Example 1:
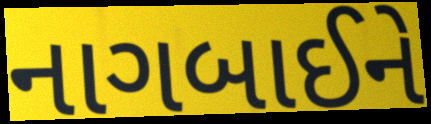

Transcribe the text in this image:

નાગબાઈને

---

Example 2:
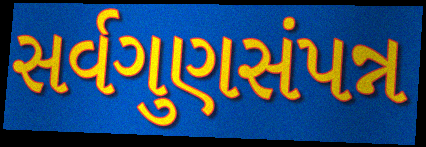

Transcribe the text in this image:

સર્વગુણસંપન્ન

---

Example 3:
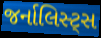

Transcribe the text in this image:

જર્નાલિસ્ટ્સ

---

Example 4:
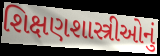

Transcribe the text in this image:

શિક્ષણશાસ્ત્રીઓનું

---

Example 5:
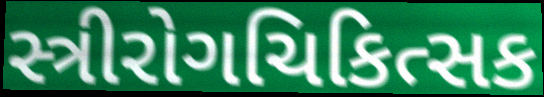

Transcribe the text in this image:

સ્ત્રીરોગચિકિત્સક